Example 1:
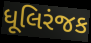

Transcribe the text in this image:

ધૂલિરંજક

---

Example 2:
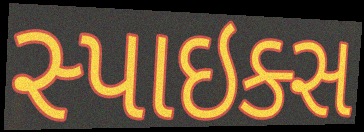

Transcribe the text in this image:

સ્પાઇક્સ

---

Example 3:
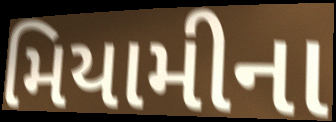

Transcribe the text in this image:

મિયામીના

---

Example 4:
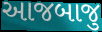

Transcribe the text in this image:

આજબાજુ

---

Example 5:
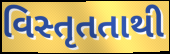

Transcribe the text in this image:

વિસ્તૃતતાથી